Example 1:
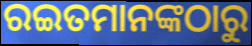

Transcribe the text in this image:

ରଇତମାନଙ୍କଠାରୁ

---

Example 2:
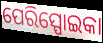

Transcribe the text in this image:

ପେରିସ୍ପୋଇକା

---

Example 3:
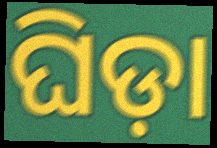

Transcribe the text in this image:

ଘିଡ଼ା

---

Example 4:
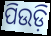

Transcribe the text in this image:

ପିଉଡ଼ି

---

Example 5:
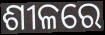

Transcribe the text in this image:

ଶୀଳରେ